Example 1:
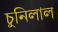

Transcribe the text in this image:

চুনিলাল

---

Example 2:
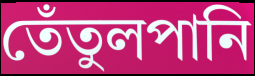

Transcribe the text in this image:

তেঁতুলপানি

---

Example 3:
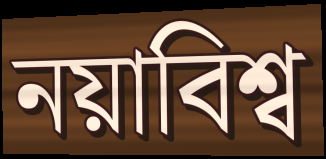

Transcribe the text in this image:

নয়াবিশ্ব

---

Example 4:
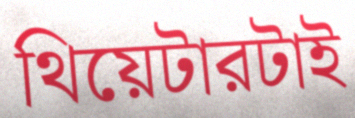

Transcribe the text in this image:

থিয়েটারটাই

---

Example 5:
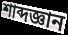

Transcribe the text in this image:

শাব্দজ্ঞান